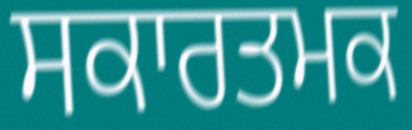
ਸਕਾਰਤਮਕ